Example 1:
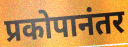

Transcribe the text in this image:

प्रकोपानंतर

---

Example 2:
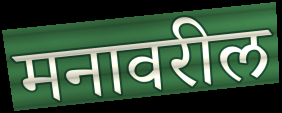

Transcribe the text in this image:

मनावरील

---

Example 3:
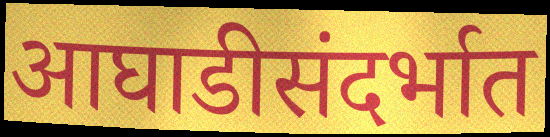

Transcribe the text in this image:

आघाडीसंदर्भात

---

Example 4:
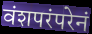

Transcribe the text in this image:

वंशपरंपरेनं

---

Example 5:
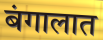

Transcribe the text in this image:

बंगालात